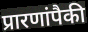
प्रारणांपैकी